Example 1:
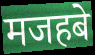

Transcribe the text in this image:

मजहबे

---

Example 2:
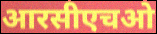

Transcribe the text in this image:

आरसीएचओ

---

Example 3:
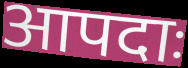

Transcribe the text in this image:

आपदाः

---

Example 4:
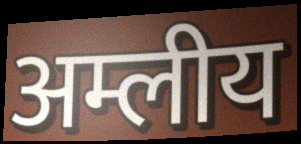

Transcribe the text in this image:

अम्लीय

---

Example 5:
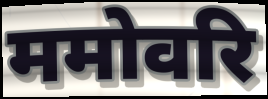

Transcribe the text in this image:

ममोवरि